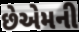
છેએમની